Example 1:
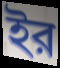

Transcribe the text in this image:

ইর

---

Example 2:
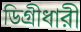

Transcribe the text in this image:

ডিগ্রীধারী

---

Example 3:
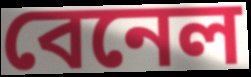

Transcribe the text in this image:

বেনেল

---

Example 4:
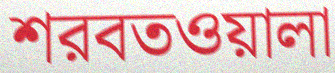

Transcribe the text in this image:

শরবতওয়ালা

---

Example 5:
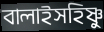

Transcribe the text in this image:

বালাইসহিষ্ণু